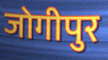
जोगीपुर